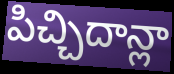
పిచ్చిదాన్లా